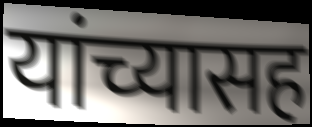
यांच्यासह